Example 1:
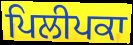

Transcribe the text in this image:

ਪਿਲੀਪਕਾ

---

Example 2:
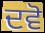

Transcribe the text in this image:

ਦਵੋ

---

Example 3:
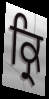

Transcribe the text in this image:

ਕ੍ਰਿ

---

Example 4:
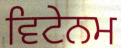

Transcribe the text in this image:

ਵਿਟੇਨਮ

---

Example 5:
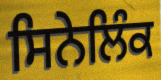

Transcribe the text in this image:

ਸਿਨੇਲਿੰਕ